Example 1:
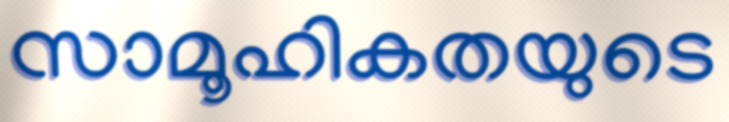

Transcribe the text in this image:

സാമൂഹികതയുടെ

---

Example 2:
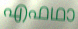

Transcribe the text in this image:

എഫഥാ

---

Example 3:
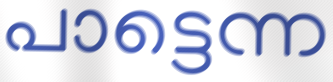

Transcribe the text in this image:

പാട്ടെന്ന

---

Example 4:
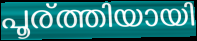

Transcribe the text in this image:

പൂര്ത്തിയായി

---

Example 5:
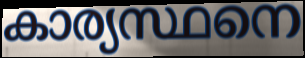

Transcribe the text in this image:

കാര്യസ്ഥനെ